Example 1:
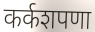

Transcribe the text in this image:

कर्कशपणा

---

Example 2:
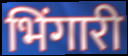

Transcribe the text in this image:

भिंगारी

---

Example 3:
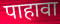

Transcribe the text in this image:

पाहावा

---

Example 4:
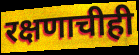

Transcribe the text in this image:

रक्षणाचीही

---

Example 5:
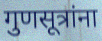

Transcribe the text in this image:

गुणसूत्रांना